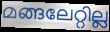
മങ്ങലേറ്റില്ല